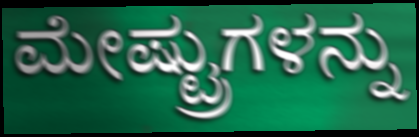
ಮೇಷ್ಟ್ರುಗಳನ್ನು